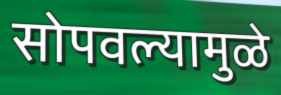
सोपवल्यामुळे